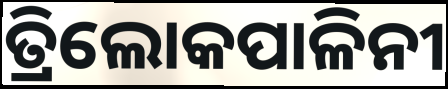
ତ୍ରିଲୋକପାଳିନୀ